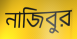
নাজিবুর